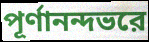
পূর্ণানন্দভরে